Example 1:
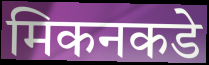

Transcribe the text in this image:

मिकनकडे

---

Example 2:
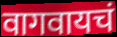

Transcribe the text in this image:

वागवायचं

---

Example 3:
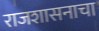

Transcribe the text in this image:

राजशासनाचा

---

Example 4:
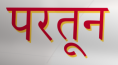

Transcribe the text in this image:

परतून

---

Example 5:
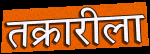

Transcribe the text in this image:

तक्रारीला